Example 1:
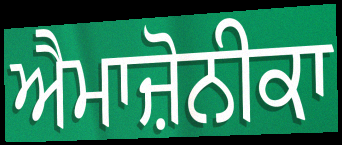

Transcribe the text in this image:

ਐਮਾਜ਼ੋਨੀਕਾ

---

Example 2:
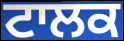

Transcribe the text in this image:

ਟਾਲਕ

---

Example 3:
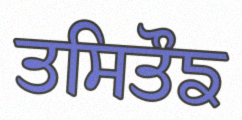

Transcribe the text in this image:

ਤਸਿਤੌਙ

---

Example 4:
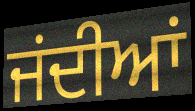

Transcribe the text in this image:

ਜਂਦੀਆਂ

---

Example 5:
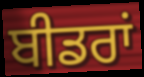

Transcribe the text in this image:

ਬੀਡਰਾਂ